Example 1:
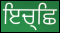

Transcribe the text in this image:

ਇਚ੍ਛਿ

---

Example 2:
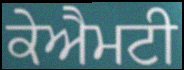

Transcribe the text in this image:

ਕੇਐਮਟੀ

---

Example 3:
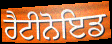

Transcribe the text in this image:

ਰੈਟੀਨੋਇਡ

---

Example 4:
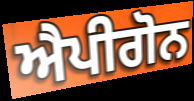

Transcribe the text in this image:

ਐਪੀਗੋਨ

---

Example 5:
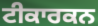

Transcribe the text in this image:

ਟੀਕਾਰਕਨ